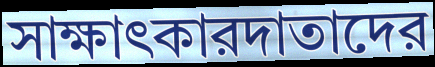
সাক্ষাৎকারদাতাদের